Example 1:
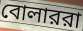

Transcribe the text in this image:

বোলাররা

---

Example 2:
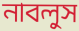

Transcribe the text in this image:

নাবলুস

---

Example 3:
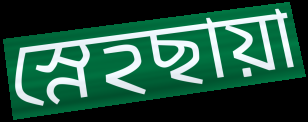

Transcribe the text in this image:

স্নেহছায়া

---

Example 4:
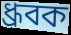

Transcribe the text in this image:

ধ্রূবক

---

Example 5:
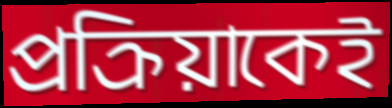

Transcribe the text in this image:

প্রক্রিয়াকেই